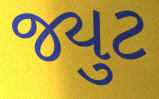
જ્યુટ